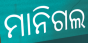
ମାନିଗଲ